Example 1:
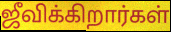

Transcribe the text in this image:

ஜீவிக்கிறார்கள்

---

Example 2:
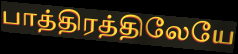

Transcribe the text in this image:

பாத்திரத்திலேயே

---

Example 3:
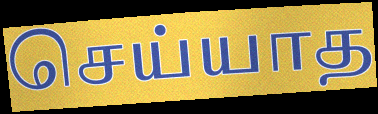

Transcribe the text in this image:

செய்யாத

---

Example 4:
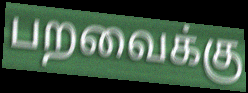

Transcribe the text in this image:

பறவைக்கு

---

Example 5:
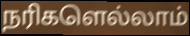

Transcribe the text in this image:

நரிகளெல்லாம்